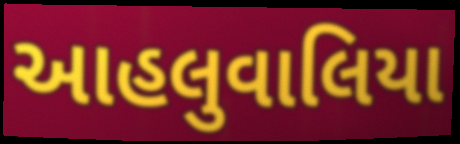
આહલુવાલિયા